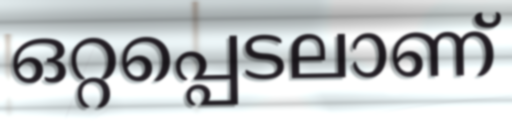
ഒറ്റപ്പെടലാണ്